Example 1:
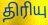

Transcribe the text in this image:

திரியு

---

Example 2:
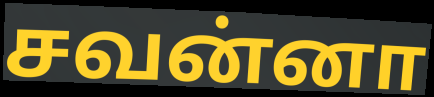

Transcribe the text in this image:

சவன்னா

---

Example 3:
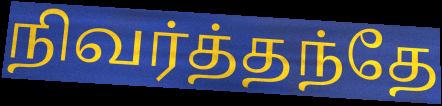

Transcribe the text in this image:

நிவர்த்தந்தே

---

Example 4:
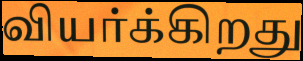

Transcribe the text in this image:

வியர்க்கிறது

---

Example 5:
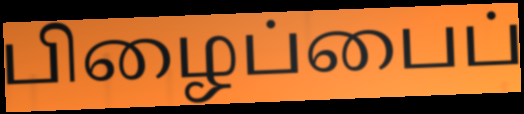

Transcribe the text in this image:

பிழைப்பைப்